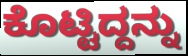
ಕೊಟ್ಟಿದ್ದನ್ನು